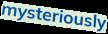
mysteriously